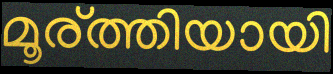
മൂര്ത്തിയായി